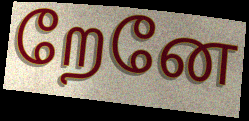
றேனே